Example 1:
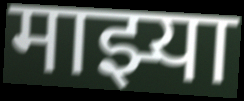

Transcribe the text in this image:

माझ्या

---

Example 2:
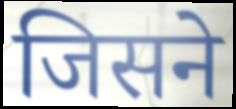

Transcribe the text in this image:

जिसने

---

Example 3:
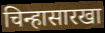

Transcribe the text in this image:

चिन्हासारखा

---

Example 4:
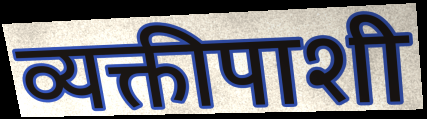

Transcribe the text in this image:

व्यक्तीपाशी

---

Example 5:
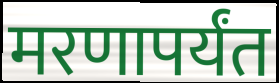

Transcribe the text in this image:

मरणापर्यंत